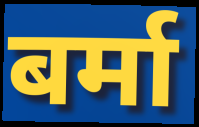
बर्मा